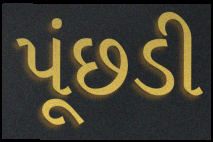
પૂંછડી